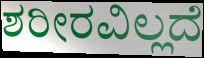
ಶರೀರವಿಲ್ಲದೆ